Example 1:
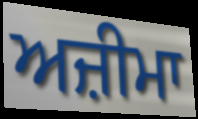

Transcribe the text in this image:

ਅਜ਼ੀਮਾ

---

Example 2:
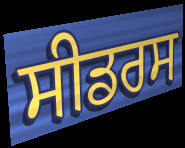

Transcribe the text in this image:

ਸੀਡਰਸ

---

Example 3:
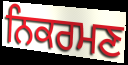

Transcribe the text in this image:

ਨਿਕਰਮਣ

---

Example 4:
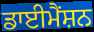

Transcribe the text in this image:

ਡਾਈਮੈਂਸ਼ਨ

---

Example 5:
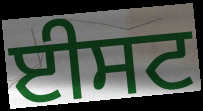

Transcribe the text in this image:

ਈਸਟ